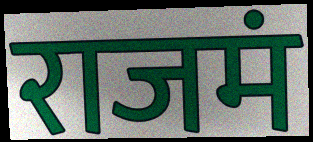
राजमं